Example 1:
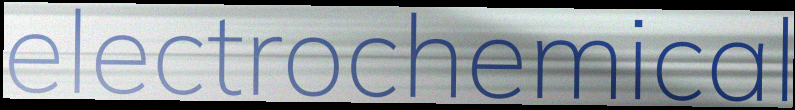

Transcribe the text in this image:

electrochemical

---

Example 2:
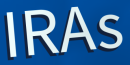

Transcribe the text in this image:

IRAs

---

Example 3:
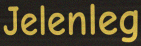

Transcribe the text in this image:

Jelenleg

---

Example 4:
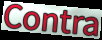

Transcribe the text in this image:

Contra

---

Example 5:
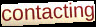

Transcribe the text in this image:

contacting